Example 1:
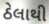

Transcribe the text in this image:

ઠેલાથી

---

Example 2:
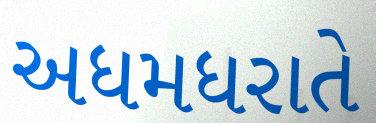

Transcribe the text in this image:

અધમધરાતે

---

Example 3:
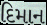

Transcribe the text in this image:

દિમાન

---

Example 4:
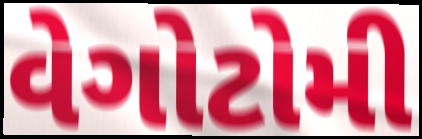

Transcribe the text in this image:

વેગોટોમી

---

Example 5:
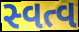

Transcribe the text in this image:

સ્વત્વ